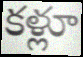
కళ్లూ